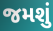
જમશું